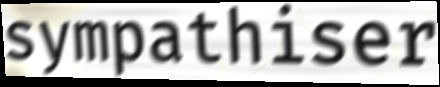
sympathiser